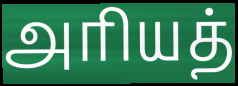
அரியத்